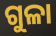
ଗୁଳା